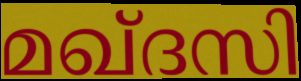
മഖ്ദസി